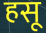
हसू